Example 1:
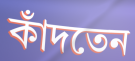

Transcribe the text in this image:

কাঁদতেন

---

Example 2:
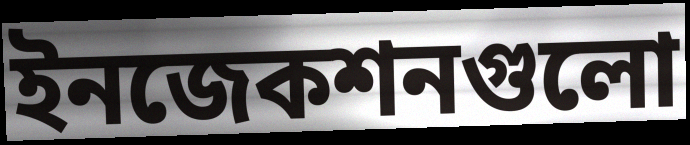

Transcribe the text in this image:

ইনজেকশনগুলো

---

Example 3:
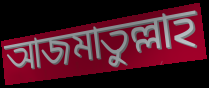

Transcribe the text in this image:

আজমাতুল্লাহ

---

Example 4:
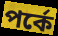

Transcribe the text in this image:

পর্কে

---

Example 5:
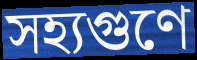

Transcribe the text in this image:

সহ্যগুণে